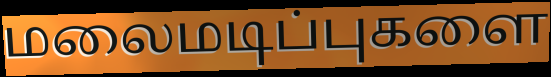
மலைமடிப்புகளை